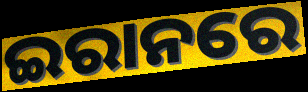
ଇରାନରେ